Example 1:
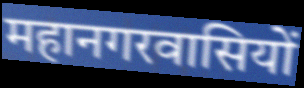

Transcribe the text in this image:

महानगरवासियों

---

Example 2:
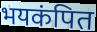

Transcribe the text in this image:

भयकंपित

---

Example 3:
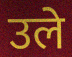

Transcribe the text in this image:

उले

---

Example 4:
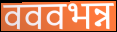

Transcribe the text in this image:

वववभन्न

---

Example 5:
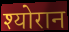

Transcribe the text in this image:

श्योरान